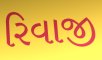
રિવાજી